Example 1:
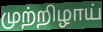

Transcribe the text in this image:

முற்றிழாய்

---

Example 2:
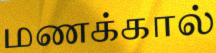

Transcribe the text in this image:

மணக்கால்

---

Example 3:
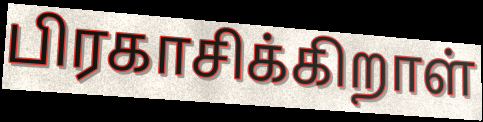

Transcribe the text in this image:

பிரகாசிக்கிறாள்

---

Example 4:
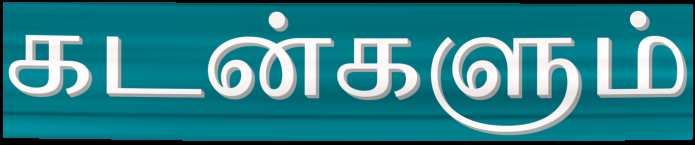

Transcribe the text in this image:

கடன்களும்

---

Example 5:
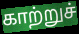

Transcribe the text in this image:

காற்றுச்